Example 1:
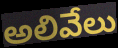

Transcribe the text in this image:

అలివేలు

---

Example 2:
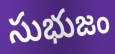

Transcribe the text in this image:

సుభుజం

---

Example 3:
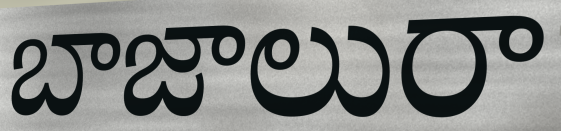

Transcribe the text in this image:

బాజాలురా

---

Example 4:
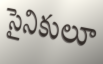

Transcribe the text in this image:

సైనికులూ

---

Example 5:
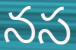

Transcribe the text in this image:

నస